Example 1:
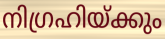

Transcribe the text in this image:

നിഗ്രഹിയ്ക്കും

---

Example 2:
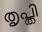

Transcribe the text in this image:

തൃപ്തി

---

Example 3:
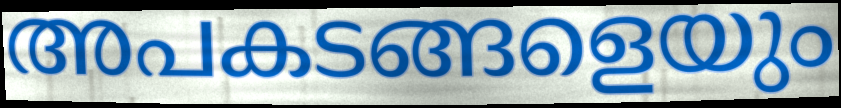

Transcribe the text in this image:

അപകടങ്ങളെയും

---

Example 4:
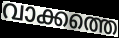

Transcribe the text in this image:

വാക്കത്തെ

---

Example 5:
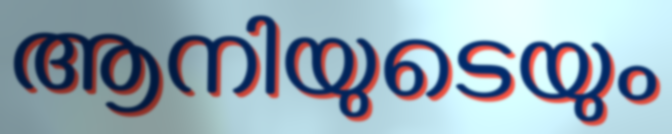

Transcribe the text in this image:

ആനിയുടെയും